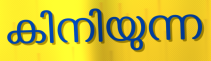
കിനിയുന്ന